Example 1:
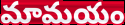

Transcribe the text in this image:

మామయం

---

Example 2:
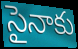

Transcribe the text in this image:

సైనాకు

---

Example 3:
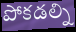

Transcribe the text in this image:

పోకడల్ని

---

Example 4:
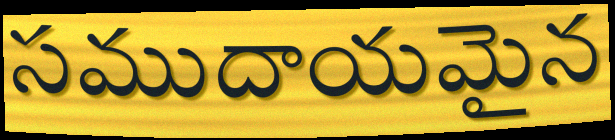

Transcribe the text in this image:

సముదాయమైన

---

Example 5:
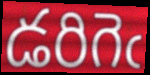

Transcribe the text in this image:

డరిగెఁ